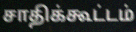
சாதிக்கூட்டம்